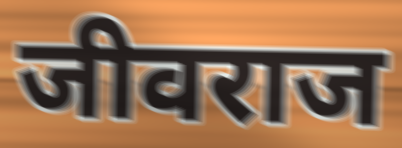
जीवराज